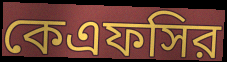
কেএফসির